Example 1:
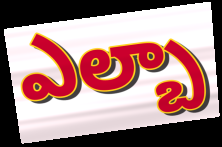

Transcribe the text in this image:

ఎల్బా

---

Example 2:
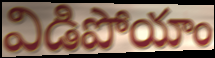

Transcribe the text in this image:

విడిపోయాం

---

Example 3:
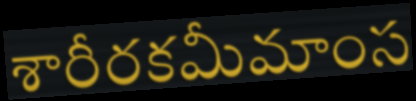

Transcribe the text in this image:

శారీరకమీమాంస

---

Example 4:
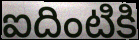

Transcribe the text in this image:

ఐదింటికి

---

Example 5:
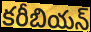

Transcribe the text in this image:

కరీబియన్